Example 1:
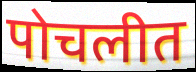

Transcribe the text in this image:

पोचलीत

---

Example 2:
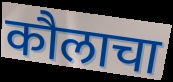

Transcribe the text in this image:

कौलाचा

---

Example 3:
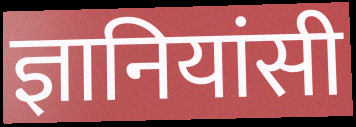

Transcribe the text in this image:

ज्ञानियांसी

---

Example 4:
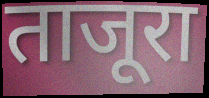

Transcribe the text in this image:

ताजूरा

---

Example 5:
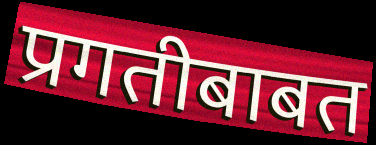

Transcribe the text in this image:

प्रगतीबाबत